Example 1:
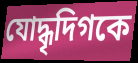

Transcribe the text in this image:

যোদ্ধৃদিগকে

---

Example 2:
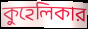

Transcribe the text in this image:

কুহেলিকার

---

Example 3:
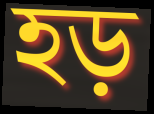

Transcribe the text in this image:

হড়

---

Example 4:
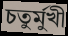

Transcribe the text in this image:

চতুর্মুখী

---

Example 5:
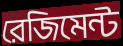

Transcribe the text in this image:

রেজিমেন্ট